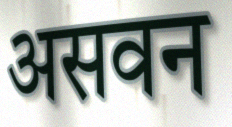
असवन